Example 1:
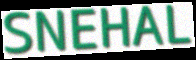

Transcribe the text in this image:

SNEHAL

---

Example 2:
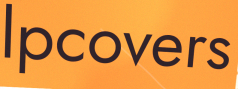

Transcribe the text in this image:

lpcovers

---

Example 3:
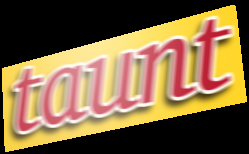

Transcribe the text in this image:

taunt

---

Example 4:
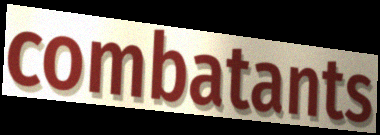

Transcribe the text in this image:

combatants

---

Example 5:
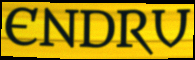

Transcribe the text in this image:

ENDRU